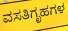
ವಸತಿಗೃಹಗಳ